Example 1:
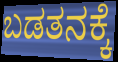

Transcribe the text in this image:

ಬಡತನಕ್ಕೆ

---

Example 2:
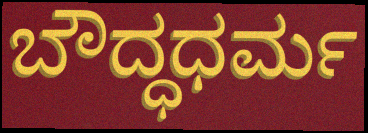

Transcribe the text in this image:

ಬೌದ್ಧಧರ್ಮ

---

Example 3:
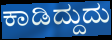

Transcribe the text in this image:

ಕಾಡಿದ್ದುದು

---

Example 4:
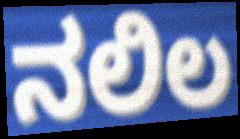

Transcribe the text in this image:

ನಲಿಲ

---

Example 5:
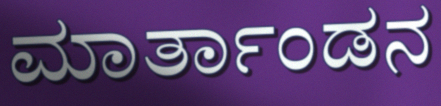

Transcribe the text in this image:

ಮಾರ್ತಾಂಡನ